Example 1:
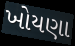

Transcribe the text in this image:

ખોયણા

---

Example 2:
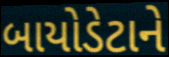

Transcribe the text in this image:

બાયોડેટાને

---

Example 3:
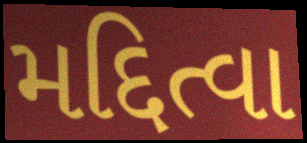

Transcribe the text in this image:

મદ્દિત્વા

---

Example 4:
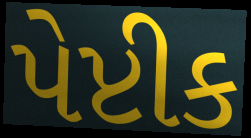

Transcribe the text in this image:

પેપ્ટીક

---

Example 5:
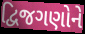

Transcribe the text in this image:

દ્વિજગણોને